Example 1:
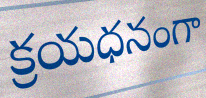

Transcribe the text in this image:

క్రయధనంగా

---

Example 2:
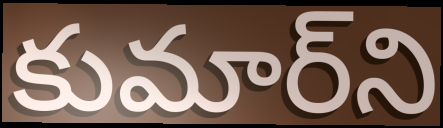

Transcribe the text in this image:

కుమార్‌ని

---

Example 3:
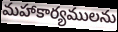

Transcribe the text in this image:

మహాకార్యములను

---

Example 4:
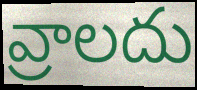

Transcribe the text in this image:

వ్రాలదు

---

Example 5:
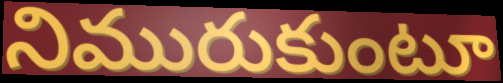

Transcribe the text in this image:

నిమురుకుంటూ